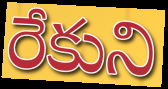
రేకుని